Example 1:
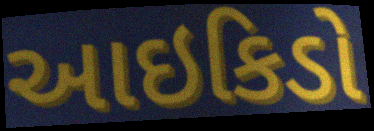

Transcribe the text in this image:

આઇકિડો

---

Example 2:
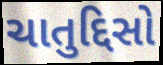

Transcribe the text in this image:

ચાતુદ્દિસો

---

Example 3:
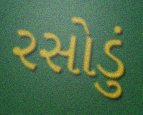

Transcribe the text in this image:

રસોડું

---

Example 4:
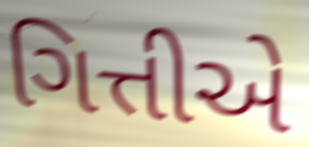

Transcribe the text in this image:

ગિત્તીએ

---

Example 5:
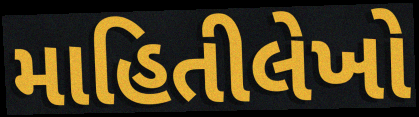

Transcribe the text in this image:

માહિતીલેખો